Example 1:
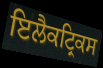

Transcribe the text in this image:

ਇਲੈਕਟ੍ਰਿਕਸ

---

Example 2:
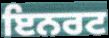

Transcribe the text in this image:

ਇਨਰਟ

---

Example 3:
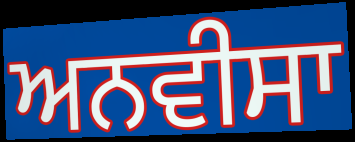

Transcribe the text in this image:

ਅਨਵੀਸਾ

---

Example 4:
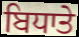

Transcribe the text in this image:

ਬਿਧਾਤੇ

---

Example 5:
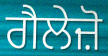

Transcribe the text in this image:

ਗੈਲੇਜ਼ੋ